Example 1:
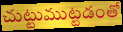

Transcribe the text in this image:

చుట్టుముట్టడంతో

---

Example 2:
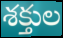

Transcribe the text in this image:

శక్తుల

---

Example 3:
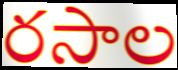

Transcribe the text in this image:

రసాల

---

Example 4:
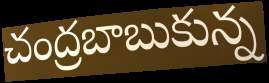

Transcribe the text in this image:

చంద్రబాబుకున్న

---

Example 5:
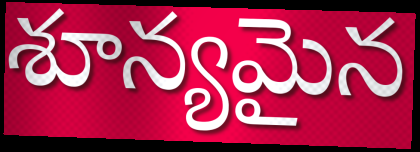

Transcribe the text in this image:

శూన్యమైన